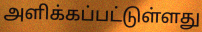
அளிக்கப்பட்டுள்ளது